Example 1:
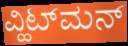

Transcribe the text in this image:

ವ್ಹಿಟ್‌ಮನ್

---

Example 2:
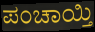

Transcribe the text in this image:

ಪಂಚಾಯ್ತಿ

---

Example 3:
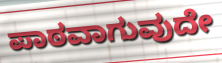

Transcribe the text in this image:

ಪಾಠವಾಗುವುದೇ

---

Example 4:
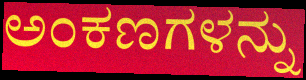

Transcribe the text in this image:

ಅಂಕಣಗಳನ್ನು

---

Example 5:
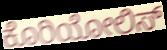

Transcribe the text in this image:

ಕೊರಿಯೋಲಿಸ್